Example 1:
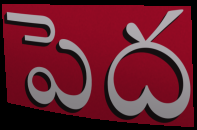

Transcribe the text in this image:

పెద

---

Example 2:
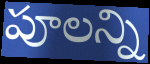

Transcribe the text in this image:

పూలన్ని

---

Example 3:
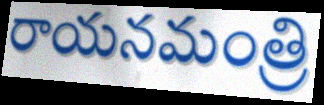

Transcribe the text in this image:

రాయనమంత్రి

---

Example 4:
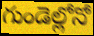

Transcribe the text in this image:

గుండెల్లోనో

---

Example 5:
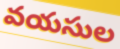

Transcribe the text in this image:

వయసుల